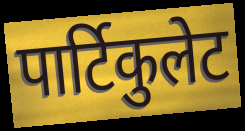
पार्टिकुलेट